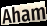
Aham